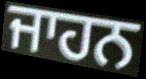
ਜਾਹਨ